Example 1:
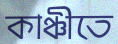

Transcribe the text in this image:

কাঞ্চীতে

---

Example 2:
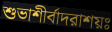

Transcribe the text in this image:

শুভাশীর্বাদরাশয়ঃ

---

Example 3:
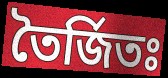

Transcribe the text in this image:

তৈর্জিতঃ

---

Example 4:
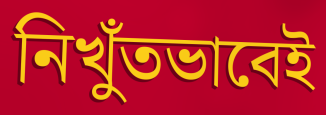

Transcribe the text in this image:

নিখুঁতভাবেই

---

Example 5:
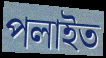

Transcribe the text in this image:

পলাইত